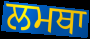
ਲਮਥਾ